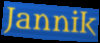
Jannik